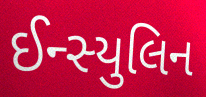
ઈન્સ્યુલિન